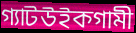
গ্যাটউইকগামী